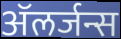
ॲलर्जन्स